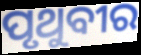
ପୃଥୁବୀର